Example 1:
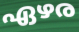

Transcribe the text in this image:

ഏഴര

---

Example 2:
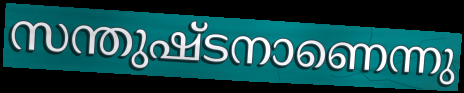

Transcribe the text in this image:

സന്തുഷ്ടനാണെന്നു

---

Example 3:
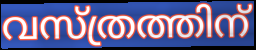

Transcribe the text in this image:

വസ്ത്രത്തിന്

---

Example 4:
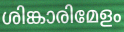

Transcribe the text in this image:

ശിങ്കാരിമേളം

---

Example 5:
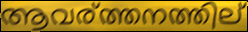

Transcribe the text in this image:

ആവര്ത്തനത്തില്